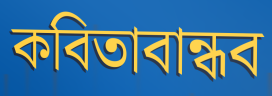
কবিতাবান্ধব